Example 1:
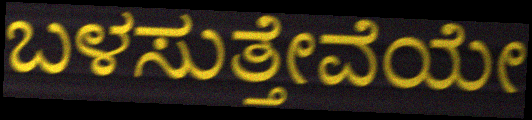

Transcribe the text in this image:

ಬಳಸುತ್ತೇವೆಯೇ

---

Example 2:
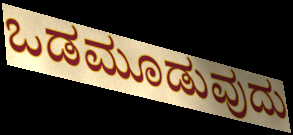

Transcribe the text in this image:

ಒಡಮೂಡುವುದು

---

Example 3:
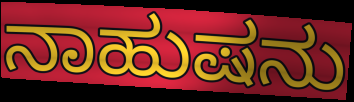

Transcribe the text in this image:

ನಾಹುಷನು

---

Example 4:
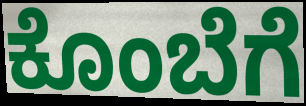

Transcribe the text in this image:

ಕೊಂಬೆಗೆ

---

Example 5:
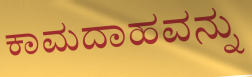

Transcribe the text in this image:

ಕಾಮದಾಹವನ್ನು